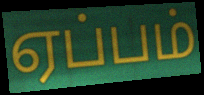
ஏப்பம்